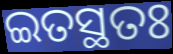
ଇତସ୍ଥତଃ